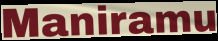
Maniramu